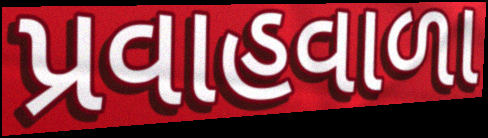
પ્રવાહવાળા